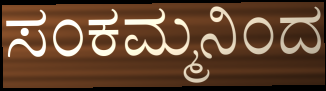
ಸಂಕಮ್ಮನಿಂದ